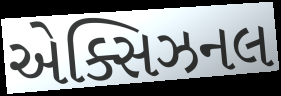
એક્સિઝનલ